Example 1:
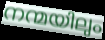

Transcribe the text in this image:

നന്മയിലും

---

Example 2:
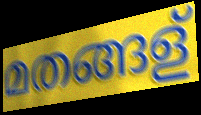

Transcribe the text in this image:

മതങ്ങള്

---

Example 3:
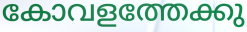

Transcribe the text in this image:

കോവളത്തേക്കു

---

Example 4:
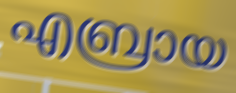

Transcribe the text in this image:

എബ്രായ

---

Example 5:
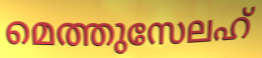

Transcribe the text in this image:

മെത്തുസേലഹ്